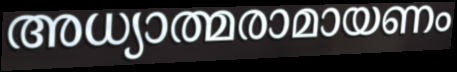
അധ്യാത്മരാമായണം